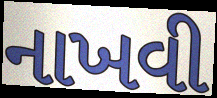
નાખવી